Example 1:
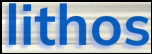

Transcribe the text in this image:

lithos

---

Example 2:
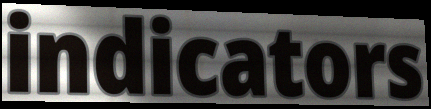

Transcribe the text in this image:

indicators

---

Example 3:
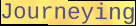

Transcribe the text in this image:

Journeying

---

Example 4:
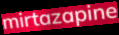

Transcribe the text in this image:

mirtazapine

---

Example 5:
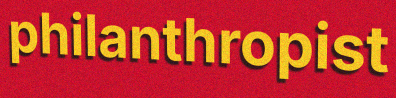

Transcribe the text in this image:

philanthropist